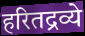
हरितद्रव्ये